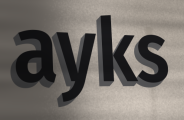
ayks